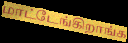
மாட்டேங்கிறாங்க